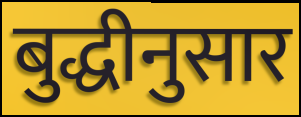
बुद्धीनुसार